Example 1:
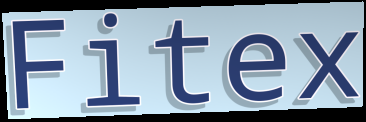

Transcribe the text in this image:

Fitex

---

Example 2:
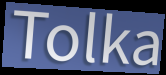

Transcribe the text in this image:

Tolka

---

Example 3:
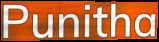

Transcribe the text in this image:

Punitha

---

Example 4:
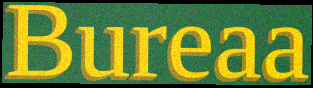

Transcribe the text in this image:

Bureaa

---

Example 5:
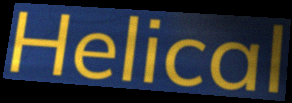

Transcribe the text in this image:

Helical